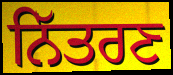
ਨਿੱਤਰਣ